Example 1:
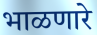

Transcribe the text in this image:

भाळणारे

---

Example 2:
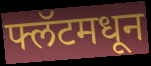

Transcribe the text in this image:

फ्लॅटमधून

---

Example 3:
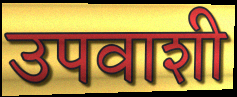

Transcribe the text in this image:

उपवाशी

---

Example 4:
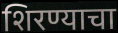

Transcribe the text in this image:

शिरण्याचा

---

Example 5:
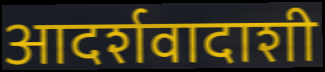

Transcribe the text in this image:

आदर्शवादाशी